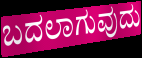
ಬದಲಾಗುವುದು